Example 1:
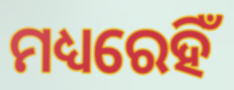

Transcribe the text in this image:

ମଧ୍ୟରେହିଁ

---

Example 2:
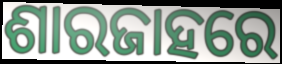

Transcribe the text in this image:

ଶାରଜାହରେ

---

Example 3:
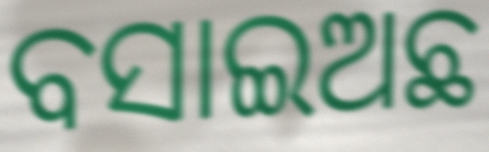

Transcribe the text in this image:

ବସାଇଅଛ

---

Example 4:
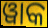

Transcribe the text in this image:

ୱାକ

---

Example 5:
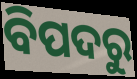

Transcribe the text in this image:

ବିପଦରୁ